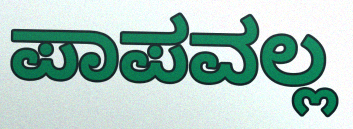
ಪಾಪವಲ್ಲ